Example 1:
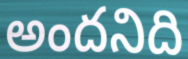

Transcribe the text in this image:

అందనిది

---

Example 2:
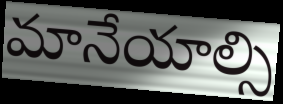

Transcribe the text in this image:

మానేయాల్సి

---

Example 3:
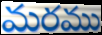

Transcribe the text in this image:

మరము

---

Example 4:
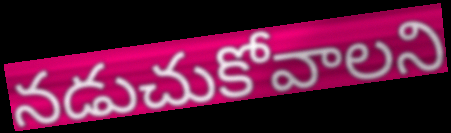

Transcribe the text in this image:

నడుచుకోవాలని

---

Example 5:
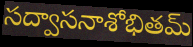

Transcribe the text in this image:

సద్వాసనాశోభితమ్